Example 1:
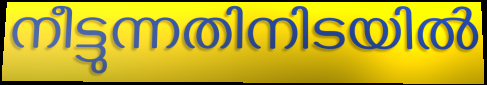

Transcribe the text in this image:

നീട്ടുന്നതിനിടയിൽ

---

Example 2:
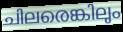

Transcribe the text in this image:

ചിലരെങ്കിലും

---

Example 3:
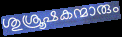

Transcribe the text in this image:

ശുശ്രൂഷകന്മാരും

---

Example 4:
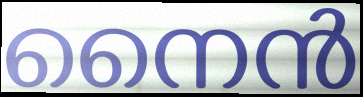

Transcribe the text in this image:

നൈൻ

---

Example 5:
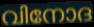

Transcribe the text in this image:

വിനോദ